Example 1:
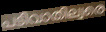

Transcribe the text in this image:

പടിവാതില്വരെ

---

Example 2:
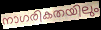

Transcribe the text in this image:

നാഗരികതയിലും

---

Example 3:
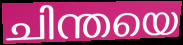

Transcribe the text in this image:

ചിന്തയെ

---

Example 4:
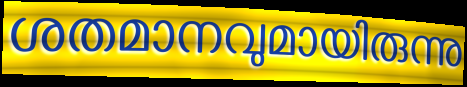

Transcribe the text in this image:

ശതമാനവുമായിരുന്നു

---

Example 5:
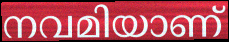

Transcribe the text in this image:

നവമിയാണ്